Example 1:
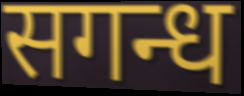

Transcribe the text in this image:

सगन्ध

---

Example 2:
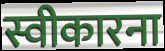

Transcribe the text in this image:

स्वीकारना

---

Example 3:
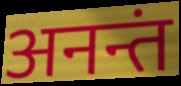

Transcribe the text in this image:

अनन्तं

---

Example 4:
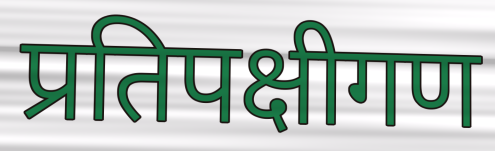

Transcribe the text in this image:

प्रतिपक्षीगण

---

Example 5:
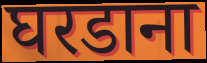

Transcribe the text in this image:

घरडाना